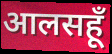
आलसहूँ